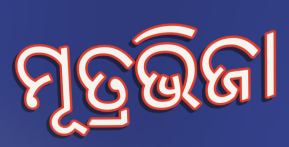
ମୂତ୍ରଭିଜା